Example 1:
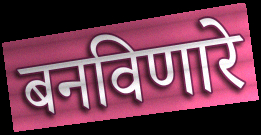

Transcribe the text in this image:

बनविणारे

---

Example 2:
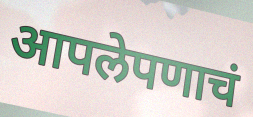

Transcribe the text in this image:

आपलेपणाचं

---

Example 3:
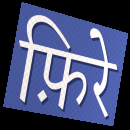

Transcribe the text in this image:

फ़िरे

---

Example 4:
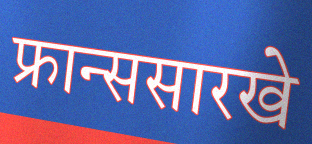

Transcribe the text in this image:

फ्रान्ससारखे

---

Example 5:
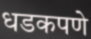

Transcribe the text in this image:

धडकपणे